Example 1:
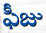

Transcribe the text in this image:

ఫీజు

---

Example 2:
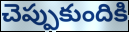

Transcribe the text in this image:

చెప్పుకుందికి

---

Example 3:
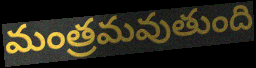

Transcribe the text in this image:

మంత్రమవుతుంది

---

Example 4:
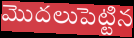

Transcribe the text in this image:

మొదలుపెట్టిన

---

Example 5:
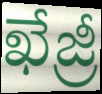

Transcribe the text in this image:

ఖేజ్రీ